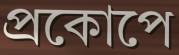
প্রকোপে